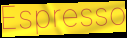
Espresso